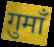
गुमाँ